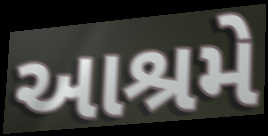
આશ્રમે